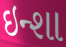
ઇન્શા